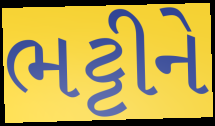
ભટ્ટીને